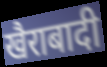
खैराबादी